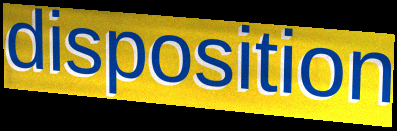
disposition